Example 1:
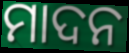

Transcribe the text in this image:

ମାଦନ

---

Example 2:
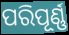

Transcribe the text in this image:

ପରିପୂର୍ଣ୍ଣ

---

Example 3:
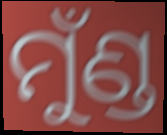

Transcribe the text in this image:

ମୁଁଣ୍ଡ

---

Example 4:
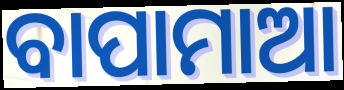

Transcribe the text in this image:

ବାପାମାଆ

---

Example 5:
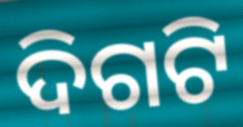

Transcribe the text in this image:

ଦିଗଟି